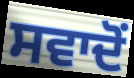
ਸਵਾਦੋਂ